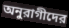
অনুরাগীদের